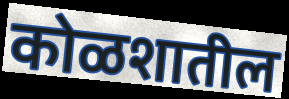
कोळशातील